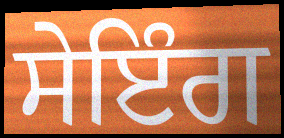
ਸੇਇੰਗ